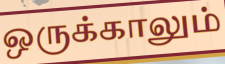
ஒருக்காலும்